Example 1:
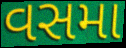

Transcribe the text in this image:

વસમા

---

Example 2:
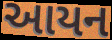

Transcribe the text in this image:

આયન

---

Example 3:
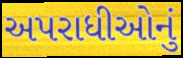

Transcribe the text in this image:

અપરાધીઓનું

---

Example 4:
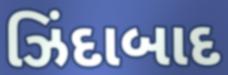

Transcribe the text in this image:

ઝિંદાબાદ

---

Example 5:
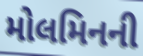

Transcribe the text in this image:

મોલમિનની